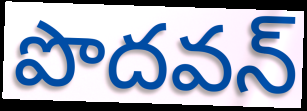
పొదవన్